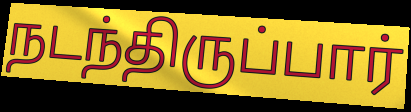
நடந்திருப்பார்